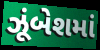
ઝૂંબેશમાં